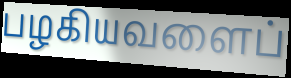
பழகியவளைப்